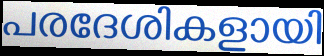
പരദേശികളായി